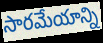
సారమేయాన్ని